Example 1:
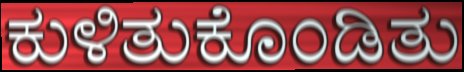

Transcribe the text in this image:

ಕುಳಿತುಕೊಂಡಿತು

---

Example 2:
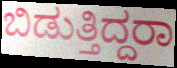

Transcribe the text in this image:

ಬಿಡುತ್ತಿದ್ದರಾ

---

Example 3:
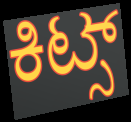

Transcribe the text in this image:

ಕಿಟ್ಸ್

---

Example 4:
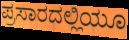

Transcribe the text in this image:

ಪ್ರಸಾರದಲ್ಲಿಯೂ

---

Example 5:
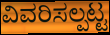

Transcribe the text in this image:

ವಿವರಿಸಲ್ಪಟ್ಟ